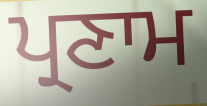
ਪ੍ਰਣਾਮ